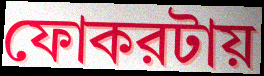
ফোকরটায়